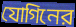
যোগিনের